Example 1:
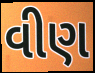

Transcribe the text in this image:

વીણ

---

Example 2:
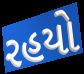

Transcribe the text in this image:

રહયો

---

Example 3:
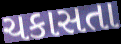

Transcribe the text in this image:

ચકાસતા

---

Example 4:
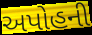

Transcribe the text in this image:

અપોહની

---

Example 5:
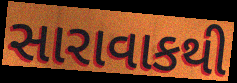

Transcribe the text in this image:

સારાવાકથી